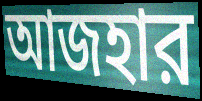
আজহার